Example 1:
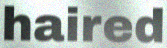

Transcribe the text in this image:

haired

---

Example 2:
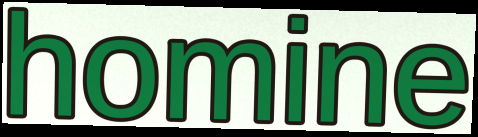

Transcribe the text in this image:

homine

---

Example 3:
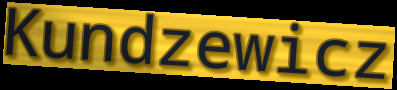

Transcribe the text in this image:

Kundzewicz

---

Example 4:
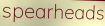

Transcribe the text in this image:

spearheads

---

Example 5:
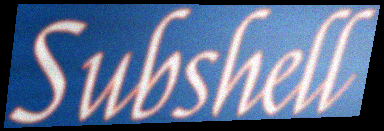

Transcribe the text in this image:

Subshell